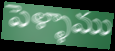
పెళ్ళాము